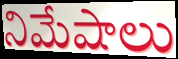
నిమేషాలు